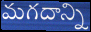
మగదాన్ని